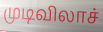
முடிவிலாச்